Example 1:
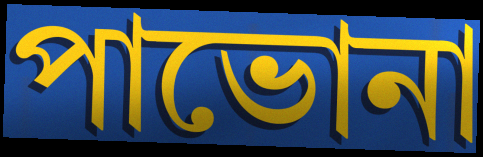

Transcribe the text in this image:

পাভোনা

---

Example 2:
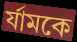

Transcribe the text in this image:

র্যামকে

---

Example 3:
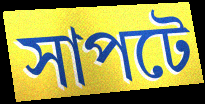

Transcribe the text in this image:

সাপটে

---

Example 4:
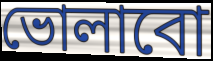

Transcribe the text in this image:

ভোলাবো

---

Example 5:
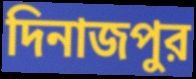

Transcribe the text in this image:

দিনাজপুর